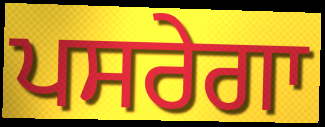
ਪਸਰੇਗਾ